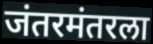
जंतरमंतरला